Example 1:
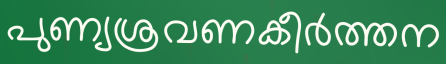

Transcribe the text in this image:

പുണ്യശ്രവണകീർത്തന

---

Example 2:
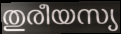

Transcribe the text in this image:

തുരീയസ്യ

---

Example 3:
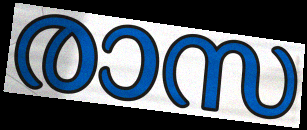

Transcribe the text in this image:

രാസ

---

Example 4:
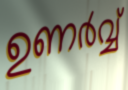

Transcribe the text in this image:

ഉണർവ്വ്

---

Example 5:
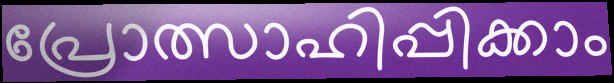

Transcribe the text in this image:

പ്രോത്സാഹിപ്പിക്കാം